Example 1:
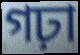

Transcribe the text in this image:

গঢ়া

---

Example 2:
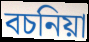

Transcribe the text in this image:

বচনিয়া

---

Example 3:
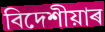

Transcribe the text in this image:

বিদেশীয়াৰ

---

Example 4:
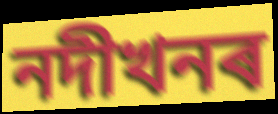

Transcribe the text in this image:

নদীখনৰ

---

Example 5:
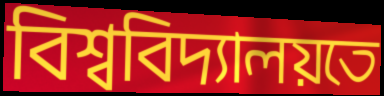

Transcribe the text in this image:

বিশ্ববিদ্যালয়তে